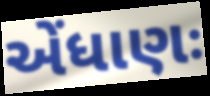
એંધાણઃ